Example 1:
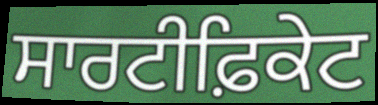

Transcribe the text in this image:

ਸਾਰਟੀਫ਼ਿਕੇਟ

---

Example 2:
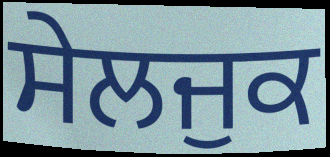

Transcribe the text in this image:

ਸੇਲਜੁਕ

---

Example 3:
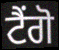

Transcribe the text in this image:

ਟੈਂਗੋ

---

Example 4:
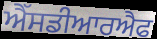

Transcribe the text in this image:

ਐੱਸਡੀਆਰਐਫ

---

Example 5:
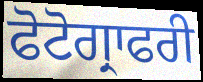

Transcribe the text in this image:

ਫੋਟੋਗ੍ਰਾਫਰੀ